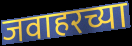
जवाहरच्या